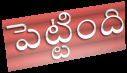
పెట్టింది